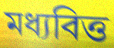
মধ্যবিত্ত